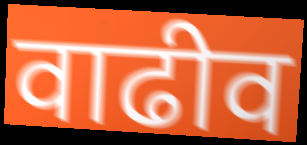
वाढीव